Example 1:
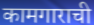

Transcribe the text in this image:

कामगाराची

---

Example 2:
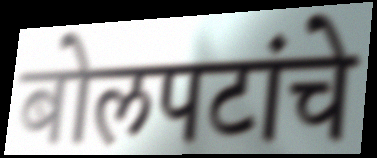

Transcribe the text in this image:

बोलपटांचे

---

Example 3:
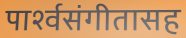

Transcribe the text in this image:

पार्श्वसंगीतासह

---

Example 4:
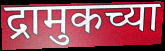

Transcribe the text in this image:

द्रामुकच्या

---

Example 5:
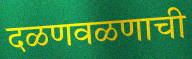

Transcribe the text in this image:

दळणवळणाची